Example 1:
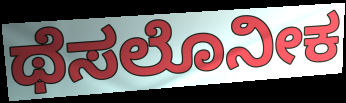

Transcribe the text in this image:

ಥೆಸಲೊನೀಕ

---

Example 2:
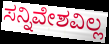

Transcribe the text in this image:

ಸನ್ನಿವೇಶವಿಲ್ಲ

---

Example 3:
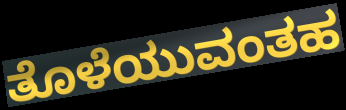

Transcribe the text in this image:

ತೊಳೆಯುವಂತಹ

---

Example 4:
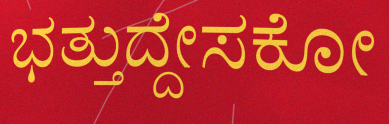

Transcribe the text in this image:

ಭತ್ತುದ್ದೇಸಕೋ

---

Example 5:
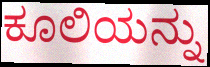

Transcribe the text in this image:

ಕೂಲಿಯನ್ನು